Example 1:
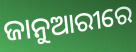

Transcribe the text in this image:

ଜାନୁଆରୀରେ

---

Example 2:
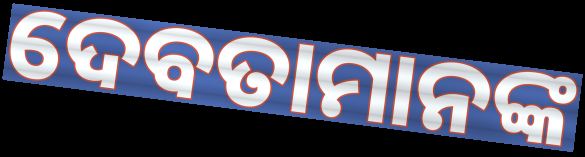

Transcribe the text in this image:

ଦେବତାମାନଙ୍କ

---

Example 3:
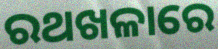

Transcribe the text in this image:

ରଥଖଳାରେ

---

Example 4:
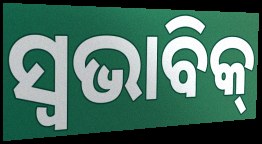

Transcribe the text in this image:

ସ୍ୱଭାବିକ୍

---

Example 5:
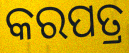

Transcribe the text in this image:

କରପତ୍ର